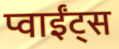
प्वाईंट्स